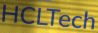
HCLTech